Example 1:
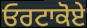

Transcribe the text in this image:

ਓਰਟਾਕੋਏ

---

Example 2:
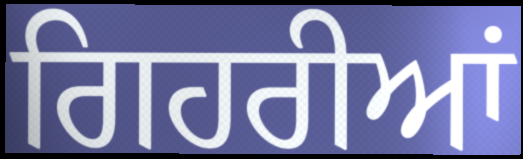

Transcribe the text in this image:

ਗਿਹਰੀਆਂ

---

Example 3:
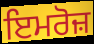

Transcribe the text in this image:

ਇਮਰੋਜ਼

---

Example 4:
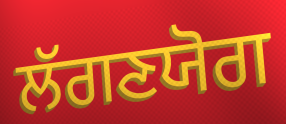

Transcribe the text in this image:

ਲੱਗਣਯੋਗ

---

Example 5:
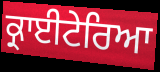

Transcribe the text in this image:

ਕ੍ਰਾਈਟੇਰਿਆ